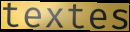
textes